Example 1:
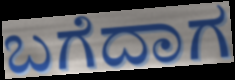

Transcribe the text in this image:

ಬಗೆದಾಗ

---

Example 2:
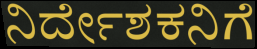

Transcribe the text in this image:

ನಿರ್ದೇಶಕನಿಗೆ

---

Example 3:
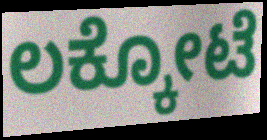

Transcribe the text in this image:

ಲಕ್ಕೋಟೆ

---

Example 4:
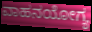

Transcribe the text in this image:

ವಾಹನಯೋಗ್ಯ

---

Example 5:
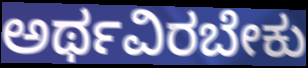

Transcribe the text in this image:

ಅರ್ಥವಿರಬೇಕು